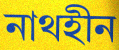
নাথহীন